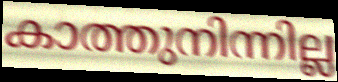
കാത്തുനിന്നില്ല